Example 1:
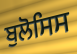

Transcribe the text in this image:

ਬੁਲੋਸਿਸ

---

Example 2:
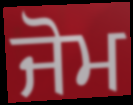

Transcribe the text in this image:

ਜੋਮ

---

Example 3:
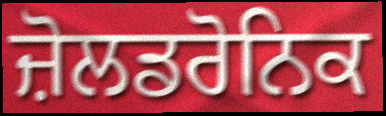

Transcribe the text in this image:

ਜ਼ੋਲਡਰੋਨਿਕ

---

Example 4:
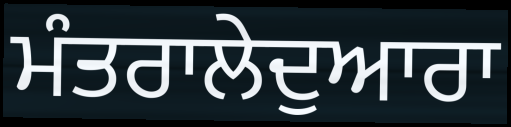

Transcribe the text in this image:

ਮੰਤਰਾਲੇਦੁਆਰਾ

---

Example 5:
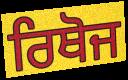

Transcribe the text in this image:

ਰਿਥੋਜ